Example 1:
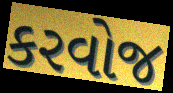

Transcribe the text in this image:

કરવોજ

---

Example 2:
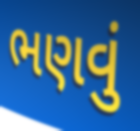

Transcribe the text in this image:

ભણવું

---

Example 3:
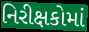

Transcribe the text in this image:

નિરીક્ષકોમાં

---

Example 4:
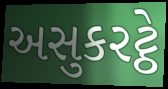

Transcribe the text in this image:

અસુકરટ્ઠે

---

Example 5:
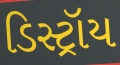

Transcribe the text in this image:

ડિસ્ટ્રૉય